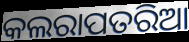
କଲରାପତରିଆ